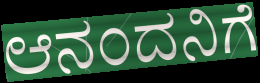
ಆನಂದನಿಗೆ